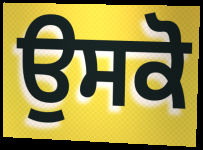
ਉਸਕੋ